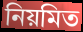
নিয়মিত